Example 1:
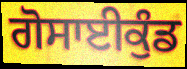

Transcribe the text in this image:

ਗੋਸਾਈਕੁੰਡ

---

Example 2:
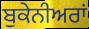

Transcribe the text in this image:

ਬੁਕੇਨੀਅਰਾਂ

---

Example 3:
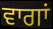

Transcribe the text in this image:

ਵਾਗਾਂ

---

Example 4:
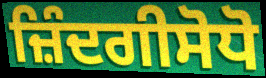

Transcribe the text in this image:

ਜ਼ਿੰਦਗੀਸੋਧੋ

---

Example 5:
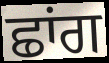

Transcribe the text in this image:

ਛਾਂਗ